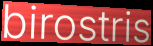
birostris